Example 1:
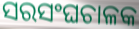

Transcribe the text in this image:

ସରସଂଘଚାଳକ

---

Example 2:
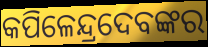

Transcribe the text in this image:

କପିଳେନ୍ଦ୍ରଦେବଙ୍କର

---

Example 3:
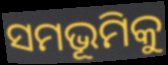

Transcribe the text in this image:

ସମଭୂମିକୁ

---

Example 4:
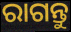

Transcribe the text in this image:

ରାଗନ୍ତୁ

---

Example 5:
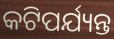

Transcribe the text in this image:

କଟିପର୍ଯ୍ୟନ୍ତ